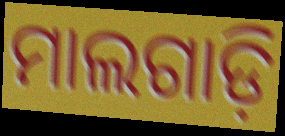
ମାଲଗାଡ଼ି